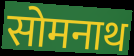
सोमनाथ